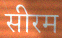
सीरम